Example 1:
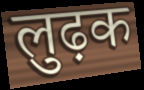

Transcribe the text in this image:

लुढ़क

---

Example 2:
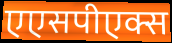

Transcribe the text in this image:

एएसपीएक्स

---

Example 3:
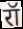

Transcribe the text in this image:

रॉ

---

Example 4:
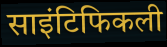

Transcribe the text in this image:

साइंटिफिकली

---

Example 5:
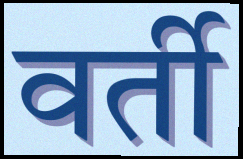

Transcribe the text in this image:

वर्ती